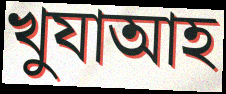
খুযাআহ